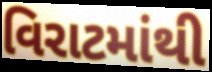
વિરાટમાંથી